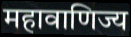
महावाणिज्‍य